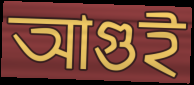
আগুই